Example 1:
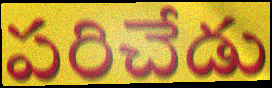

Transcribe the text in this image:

పరిచేడు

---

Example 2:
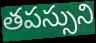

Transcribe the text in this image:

తపస్సుని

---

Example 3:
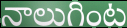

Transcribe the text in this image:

నాలుగింట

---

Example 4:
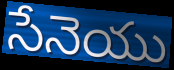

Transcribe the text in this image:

సేనెయు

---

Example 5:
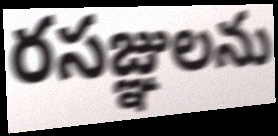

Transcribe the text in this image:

రసజ్ఞులను